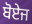
ਬੋਏਜ